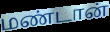
மண்டான்